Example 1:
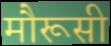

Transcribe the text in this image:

मौरूसी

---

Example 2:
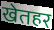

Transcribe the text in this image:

खेतहर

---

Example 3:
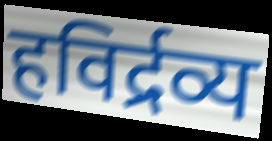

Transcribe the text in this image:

हविर्द्रव्य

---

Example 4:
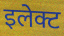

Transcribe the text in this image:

इलेक्ट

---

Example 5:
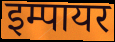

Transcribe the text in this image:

इम्पायर